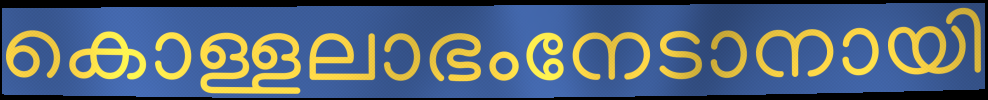
കൊള്ളലാഭംനേടാനായി